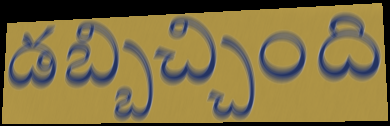
డబ్బిచ్చింది